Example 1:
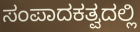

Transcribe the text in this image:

ಸಂಪಾದಕತ್ವದಲ್ಲಿ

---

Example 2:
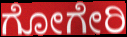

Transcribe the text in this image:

ಗೋಗೇರಿ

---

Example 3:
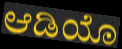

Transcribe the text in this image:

ಆಡಿಯೊ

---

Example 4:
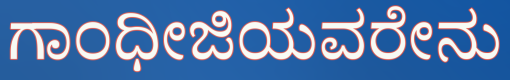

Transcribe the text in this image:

ಗಾಂಧೀಜಿಯವರೇನು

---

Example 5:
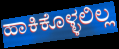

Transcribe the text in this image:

ಹಾಕಿಕೊಳ್ಳಲಿಲ್ಲ